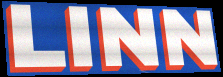
LINN